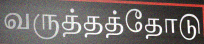
வருத்தத்தோடு